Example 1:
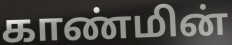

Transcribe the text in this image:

காண்மின்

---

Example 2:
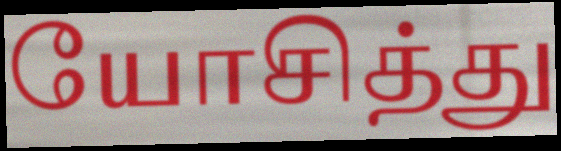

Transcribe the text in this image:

யோசித்து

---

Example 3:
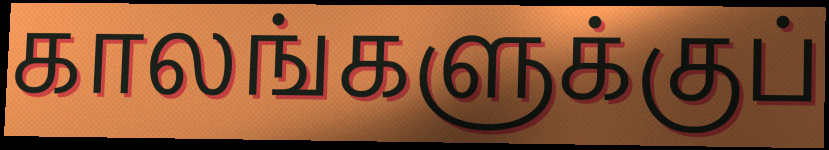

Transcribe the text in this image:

காலங்களுக்குப்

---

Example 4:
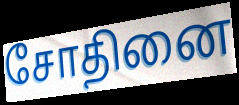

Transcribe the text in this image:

சோதினை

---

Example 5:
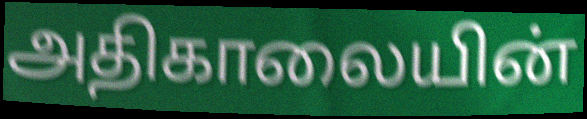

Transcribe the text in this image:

அதிகாலையின்